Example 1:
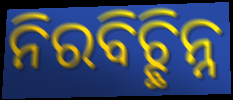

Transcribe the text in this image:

ନିରବିଚ୍ଛିନ୍ନ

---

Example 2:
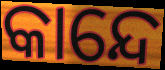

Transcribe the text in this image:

କାନ୍ଦେ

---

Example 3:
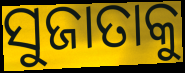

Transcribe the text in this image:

ସୁଜାତାକୁ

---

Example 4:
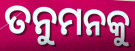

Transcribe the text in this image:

ତନୁମନକୁ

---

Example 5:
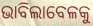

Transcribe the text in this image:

ଭାବିଲାବେଳକୁ